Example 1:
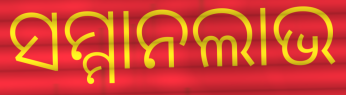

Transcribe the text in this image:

ସମ୍ମାନଲାଭ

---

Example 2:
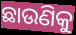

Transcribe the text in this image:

ଛାଉଣିକୁ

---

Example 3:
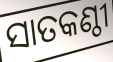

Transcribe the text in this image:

ସାତକଣ୍ଠୀ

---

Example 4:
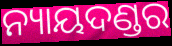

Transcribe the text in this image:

ନ୍ୟାୟଦଣ୍ଡର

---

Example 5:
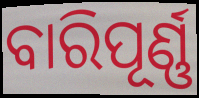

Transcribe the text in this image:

ବାରିପୂର୍ଣ୍ଣ